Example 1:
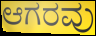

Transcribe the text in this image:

ಆಗರವು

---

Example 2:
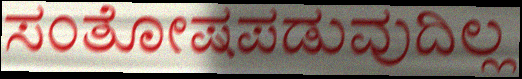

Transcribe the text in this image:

ಸಂತೋಷಪಡುವುದಿಲ್ಲ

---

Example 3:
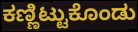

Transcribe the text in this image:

ಕಣ್ಣಿಟ್ಟುಕೊಂಡು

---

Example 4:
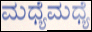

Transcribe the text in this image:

ಮಧ್ಯೆಮಧ್ಯೆ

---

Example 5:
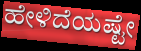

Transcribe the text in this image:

ಹೇಳಿದೆಯಷ್ಟೇ